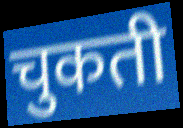
चुकती